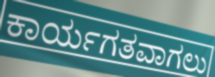
ಕಾರ್ಯಗತವಾಗಲು